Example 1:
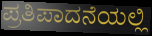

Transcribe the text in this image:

ಪ್ರತಿಪಾದನೆಯಲ್ಲಿ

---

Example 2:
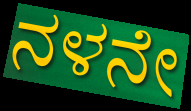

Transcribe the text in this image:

ನಳನೇ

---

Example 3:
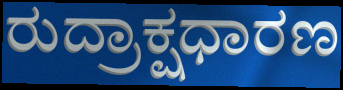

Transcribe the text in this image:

ರುದ್ರಾಕ್ಷಧಾರಣ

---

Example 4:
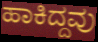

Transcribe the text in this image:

ಹಾಕಿದ್ದವು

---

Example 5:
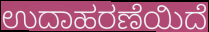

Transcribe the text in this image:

ಉದಾಹರಣೆಯಿದೆ